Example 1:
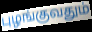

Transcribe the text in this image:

புழங்குவதும்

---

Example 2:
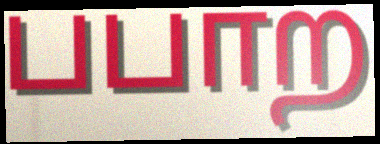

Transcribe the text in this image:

பபாற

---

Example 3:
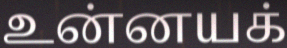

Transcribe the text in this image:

உன்னயக்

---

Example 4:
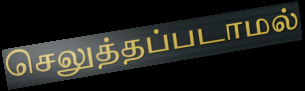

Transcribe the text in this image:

செலுத்தப்படாமல்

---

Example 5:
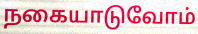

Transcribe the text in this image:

நகையாடுவோம்